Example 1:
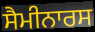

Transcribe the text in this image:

ਸੈਮੀਨਾਰਸ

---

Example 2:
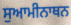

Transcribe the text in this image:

ਸੁਆਮੀਨਾਥਨ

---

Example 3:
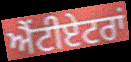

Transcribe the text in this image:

ਐਂਟੀਏਟਰਾਂ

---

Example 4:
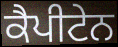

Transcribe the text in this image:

ਕੈਪੀਟੇਨ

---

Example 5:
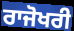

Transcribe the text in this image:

ਰਾਜੋਖਰੀ